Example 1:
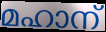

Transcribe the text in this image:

മഹാന്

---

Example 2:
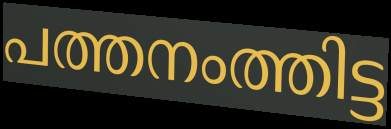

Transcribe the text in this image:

പത്തനംത്തിട്ട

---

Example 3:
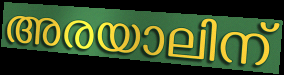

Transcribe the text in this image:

അരയാലിന്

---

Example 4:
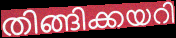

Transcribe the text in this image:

തിങ്ങിക്കയറി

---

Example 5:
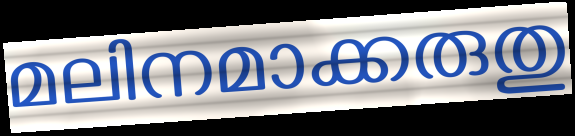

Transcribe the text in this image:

മലിനമാക്കരുതു